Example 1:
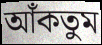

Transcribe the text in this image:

আঁকতুম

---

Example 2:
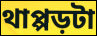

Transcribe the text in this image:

থাপ্পড়টা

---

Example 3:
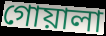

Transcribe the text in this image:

গোয়ালা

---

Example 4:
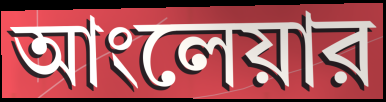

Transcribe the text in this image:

আংলেয়ার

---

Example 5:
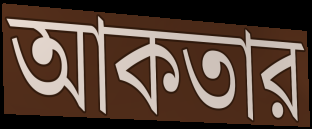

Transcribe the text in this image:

আকতার